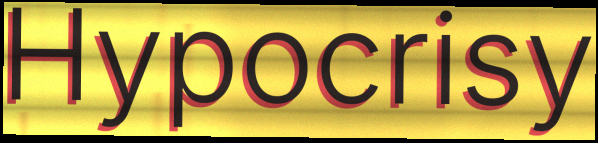
Hypocrisy